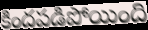
కిందపడిపోయింది